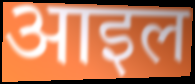
आइल